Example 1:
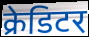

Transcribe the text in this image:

क्रेडिटर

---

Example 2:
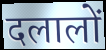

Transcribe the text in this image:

दलालों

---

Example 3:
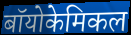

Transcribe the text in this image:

बॉयोकेमिकल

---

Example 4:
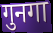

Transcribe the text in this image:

गुनगा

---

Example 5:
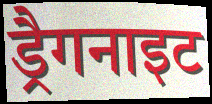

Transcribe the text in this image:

ड्रैगनाइट